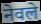
नेवले